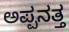
ಅಪ್ಪನತ್ತ